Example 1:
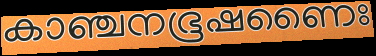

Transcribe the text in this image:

കാഞ്ചനഭൂഷണൈഃ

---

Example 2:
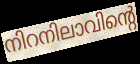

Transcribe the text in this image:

നിറനിലാവിന്റെ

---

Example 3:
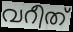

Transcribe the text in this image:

വറീത്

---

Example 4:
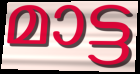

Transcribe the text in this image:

മാട്ട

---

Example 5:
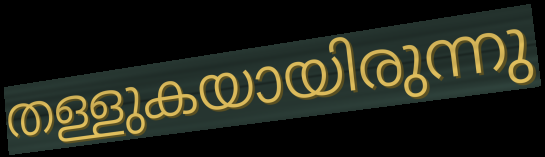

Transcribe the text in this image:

തള്ളുകയായിരുന്നു